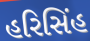
હરિસિંહ